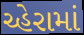
ચ્હેરામાં